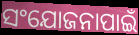
ସଂଯୋଜନାପାଇଁ